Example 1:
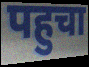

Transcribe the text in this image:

पहुचा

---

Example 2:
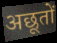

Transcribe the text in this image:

अछूतों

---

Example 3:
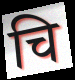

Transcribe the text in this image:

चि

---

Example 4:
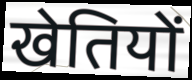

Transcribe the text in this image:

खेतियों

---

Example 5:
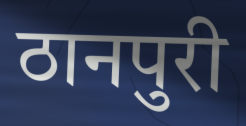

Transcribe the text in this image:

ठानपुरी